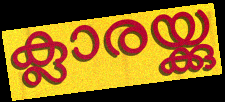
ക്ലാരയ്ക്കു